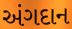
અંગદાન